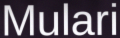
Mulari